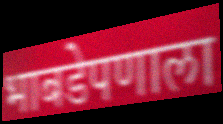
भाबडेपणाला